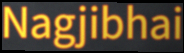
Nagjibhai